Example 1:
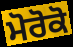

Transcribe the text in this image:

ਮੋਰੋਕੋ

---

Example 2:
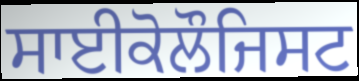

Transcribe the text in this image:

ਸਾਈਕੋਲੌਜਿਸਟ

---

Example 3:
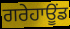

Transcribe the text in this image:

ਗਰੇਹਾਊਂਡ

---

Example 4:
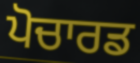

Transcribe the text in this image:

ਪੋਚਾਰਡ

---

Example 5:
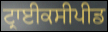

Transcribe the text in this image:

ਟ੍ਰਾਈਕਸੀਪੀਡ